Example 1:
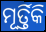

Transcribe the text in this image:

ମୂର୍ତ୍ତିକି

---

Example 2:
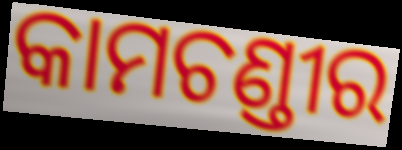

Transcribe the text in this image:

କାମଚଣ୍ଡୀର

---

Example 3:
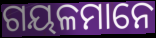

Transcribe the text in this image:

ଗୟଳମାନେ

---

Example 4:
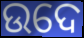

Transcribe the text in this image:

ଉଦେ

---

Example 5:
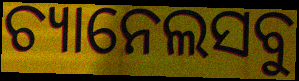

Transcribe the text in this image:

ଚ୍ୟାନେଲସବୁ